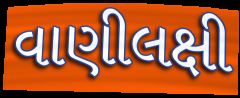
વાણીલક્ષી